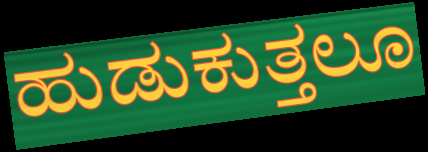
ಹುಡುಕುತ್ತಲೂ